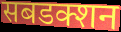
सबडक्शन